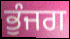
ਭੁੰਜਗ